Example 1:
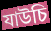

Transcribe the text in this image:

যাউচি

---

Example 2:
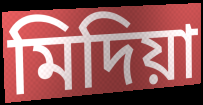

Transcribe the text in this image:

মিদিয়া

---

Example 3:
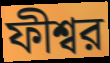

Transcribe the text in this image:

ফীশ্বর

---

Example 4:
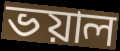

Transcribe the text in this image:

ভয়াল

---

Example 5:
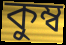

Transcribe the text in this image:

কুম্ব